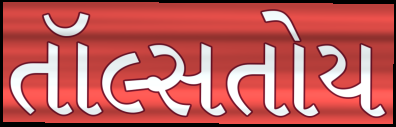
તૉલ્સતોય